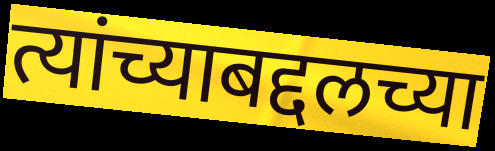
त्यांच्याबद्दलच्या